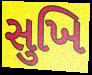
સુખિ